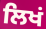
ਲਿਖਂ